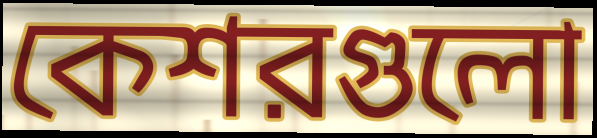
কেশরগুলো